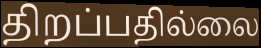
திறப்பதில்லை